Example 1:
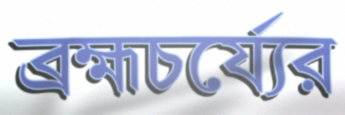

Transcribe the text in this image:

ব্রহ্মচর্য্যের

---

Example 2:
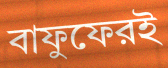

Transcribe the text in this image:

বাফুফেরই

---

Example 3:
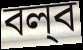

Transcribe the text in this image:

বল্‌ব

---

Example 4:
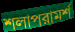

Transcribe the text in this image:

শলাপরামর্শ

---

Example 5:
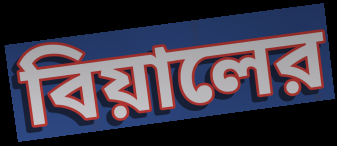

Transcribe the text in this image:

বিয়ালের